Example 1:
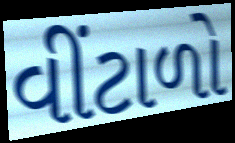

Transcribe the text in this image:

વીંટાળો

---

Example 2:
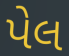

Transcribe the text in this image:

પેલ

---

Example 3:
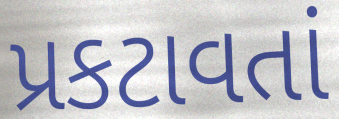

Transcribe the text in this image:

પ્રકટાવતાં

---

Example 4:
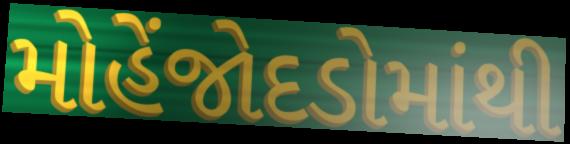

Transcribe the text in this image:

મોહેંજોદડોમાંથી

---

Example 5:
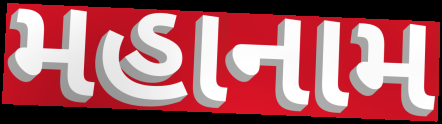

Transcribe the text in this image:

મહાનામ